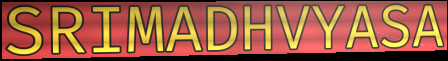
SRIMADHVYASA